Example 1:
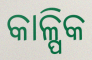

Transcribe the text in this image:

କାଳ୍ପିକ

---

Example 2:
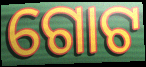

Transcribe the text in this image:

ଗୋଟ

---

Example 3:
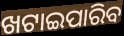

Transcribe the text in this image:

ଖଟାଇପାରିବ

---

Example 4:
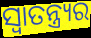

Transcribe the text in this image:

ସ୍ଵାତନ୍ତ୍ର୍ୟର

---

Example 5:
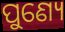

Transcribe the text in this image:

ପୁଣ୍ୟେ